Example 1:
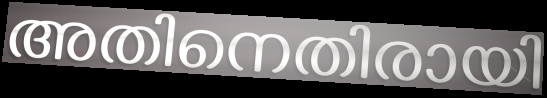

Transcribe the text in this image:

അതിനെതിരായി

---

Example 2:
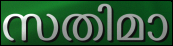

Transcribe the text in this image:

സതിമാ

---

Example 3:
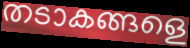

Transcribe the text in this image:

തടാകങ്ങളെ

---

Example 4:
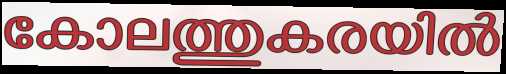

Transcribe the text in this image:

കോലത്തുകരയിൽ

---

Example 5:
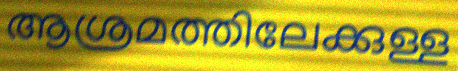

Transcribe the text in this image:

ആശ്രമത്തിലേക്കുള്ള